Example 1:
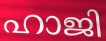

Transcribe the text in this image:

ഹാജി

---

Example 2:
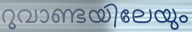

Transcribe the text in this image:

റുവാണ്ടയിലേയും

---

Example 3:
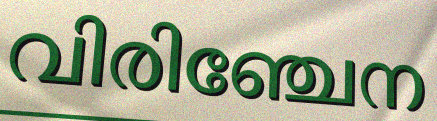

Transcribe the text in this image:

വിരിഞ്ചേന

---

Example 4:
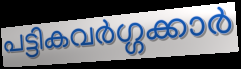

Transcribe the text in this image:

പട്ടികവർഗ്ഗക്കാർ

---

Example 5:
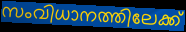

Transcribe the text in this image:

സംവിധാനത്തിലേക്ക്